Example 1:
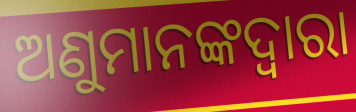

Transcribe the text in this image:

ଅଣୁମାନଙ୍କଦ୍ଵାରା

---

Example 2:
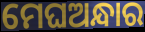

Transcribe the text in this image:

ମେଘଅନ୍ଧାର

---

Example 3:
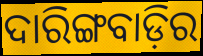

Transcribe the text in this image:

ଦାରିଙ୍ଗବାଡ଼ିର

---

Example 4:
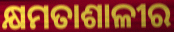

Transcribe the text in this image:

କ୍ଷମତାଶାଳୀର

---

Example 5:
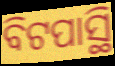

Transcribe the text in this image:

ବିଟପାସ୍ଥି